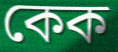
কেক